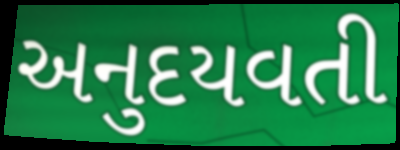
અનુદયવતી